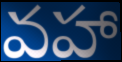
వహా